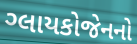
ગ્લાયકોજેનનો